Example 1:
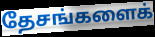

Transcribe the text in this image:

தேசங்களைக்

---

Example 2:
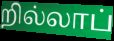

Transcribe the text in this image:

றில்லாப்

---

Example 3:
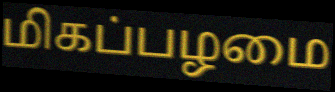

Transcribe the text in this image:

மிகப்பழமை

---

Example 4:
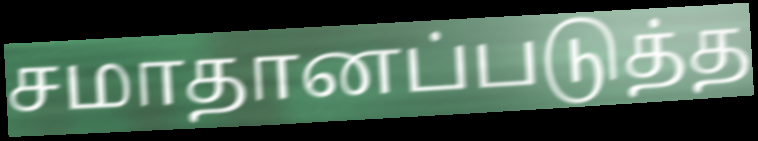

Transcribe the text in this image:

சமாதானப்படுத்த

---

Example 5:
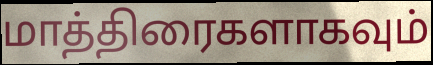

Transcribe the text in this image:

மாத்திரைகளாகவும்